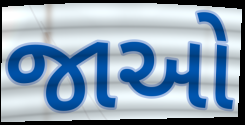
જાઓ